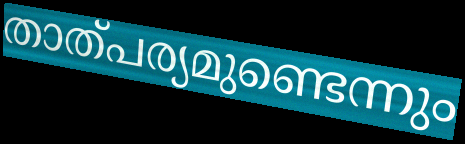
താത്പര്യമുണ്ടെന്നും